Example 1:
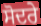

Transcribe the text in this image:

ਸੋਦਰੇ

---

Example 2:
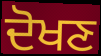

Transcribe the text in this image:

ਦੋਖਣ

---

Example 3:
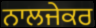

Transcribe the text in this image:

ਨਾਲਜੇਕਰ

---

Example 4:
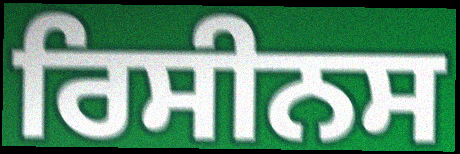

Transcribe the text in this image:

ਰਿਸੀਨਸ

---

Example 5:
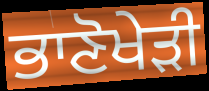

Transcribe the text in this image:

ਭਾਣੋਖੇੜੀ